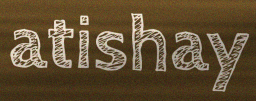
atishay